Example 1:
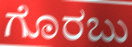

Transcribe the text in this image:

ಗೊರಬು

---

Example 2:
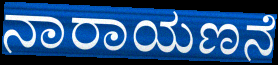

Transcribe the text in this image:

ನಾರಾಯಣನೆ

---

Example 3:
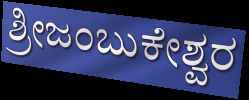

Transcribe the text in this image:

ಶ್ರೀಜಂಬುಕೇಶ್ವರ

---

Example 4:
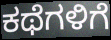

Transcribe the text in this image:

ಕಥೆಗಳಿಗೆ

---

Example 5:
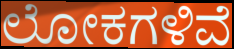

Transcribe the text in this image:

ಲೋಕಗಳಿವೆ